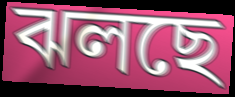
ঝলছে